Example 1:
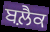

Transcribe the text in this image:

ਬਲ਼ੈਕ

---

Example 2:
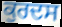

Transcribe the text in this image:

ਕੁਰਦਸ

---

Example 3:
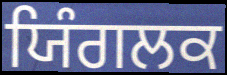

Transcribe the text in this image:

ਯਿੰਗਲਕ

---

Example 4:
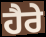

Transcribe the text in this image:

ਹੈਰੇ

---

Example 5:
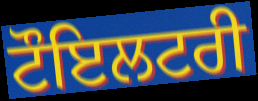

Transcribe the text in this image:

ਟੌਇਲਟਰੀ